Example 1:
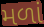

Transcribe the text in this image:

મળાં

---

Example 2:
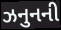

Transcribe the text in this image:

ઝનુનની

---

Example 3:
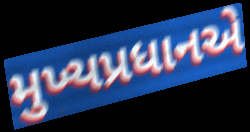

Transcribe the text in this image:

મુખ્યપ્રધાનએ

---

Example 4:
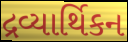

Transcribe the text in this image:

દ્રવ્યાર્થિકન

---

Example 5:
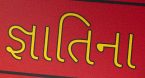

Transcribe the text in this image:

જ્ઞાતિના